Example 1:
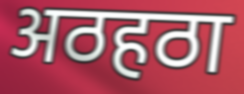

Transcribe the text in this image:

अठहठा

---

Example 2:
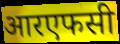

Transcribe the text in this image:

आरएफसी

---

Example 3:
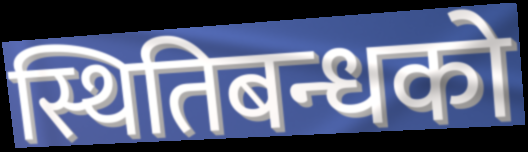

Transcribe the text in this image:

स्थितिबन्धको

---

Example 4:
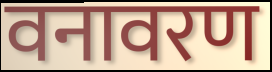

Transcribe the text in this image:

वनावरण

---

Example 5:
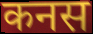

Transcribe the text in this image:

कनस